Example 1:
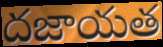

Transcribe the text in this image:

దజాయత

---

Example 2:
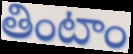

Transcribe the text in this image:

తింటాం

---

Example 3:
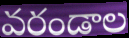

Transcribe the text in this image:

వరండాల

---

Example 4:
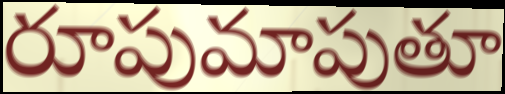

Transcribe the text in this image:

రూపుమాపుతూ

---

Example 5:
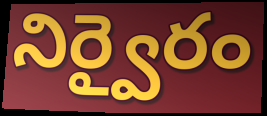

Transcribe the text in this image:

నిర్వైరం